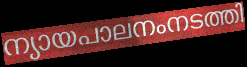
ന്യായപാലനംനടത്തി